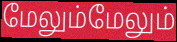
மேலும்மேலும்